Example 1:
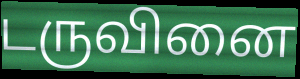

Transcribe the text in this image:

டருவினை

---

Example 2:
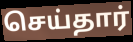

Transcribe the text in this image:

செய்தார்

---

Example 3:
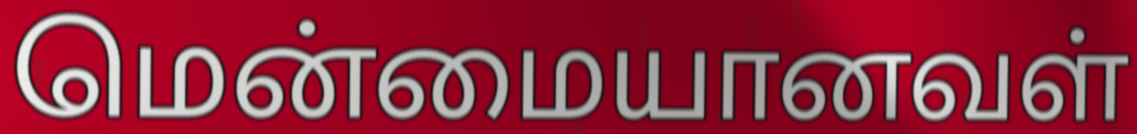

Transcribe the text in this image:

மென்மையானவள்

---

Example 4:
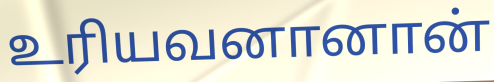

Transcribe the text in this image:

உரியவனானான்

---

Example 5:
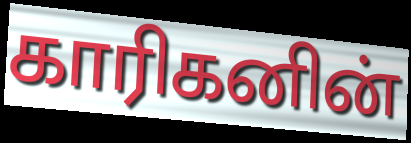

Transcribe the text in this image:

காரிகனின்